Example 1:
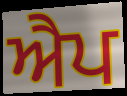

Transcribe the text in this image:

ਐਪ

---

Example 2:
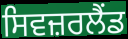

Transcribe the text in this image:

ਸਿਵਜ਼ਰਲੈਂਡ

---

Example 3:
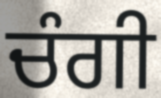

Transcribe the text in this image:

ਚੰਗੀ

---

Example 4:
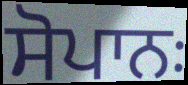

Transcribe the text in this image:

ਸੋਪਾਨਃ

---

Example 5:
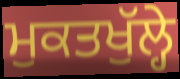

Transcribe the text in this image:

ਮੁਕਤਖੁੱਲ੍ਹੇ